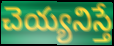
చెయ్యనిస్తే